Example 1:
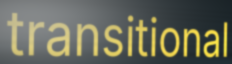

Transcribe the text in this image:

transitional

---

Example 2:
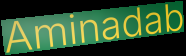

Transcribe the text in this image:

Aminadab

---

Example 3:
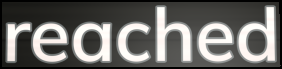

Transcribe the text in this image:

reached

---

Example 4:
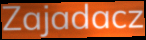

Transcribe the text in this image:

Zajadacz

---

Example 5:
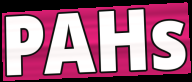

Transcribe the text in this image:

PAHs